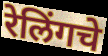
रेलिंगचे